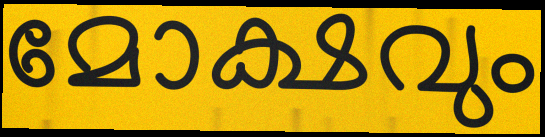
മോക്ഷവും